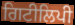
ਗਿਟੀਲਿਪੀ